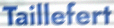
Taillefert